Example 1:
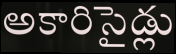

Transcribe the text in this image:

అకారిసైడ్లు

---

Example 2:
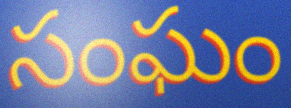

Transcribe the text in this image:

సంఘం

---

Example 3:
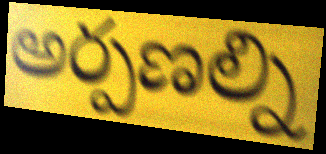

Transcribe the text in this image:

అర్పణల్ని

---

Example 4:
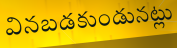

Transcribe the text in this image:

వినబడకుండునట్లు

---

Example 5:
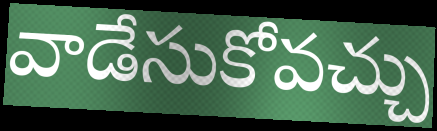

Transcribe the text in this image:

వాడేసుకోవచ్చు